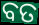
ବତ